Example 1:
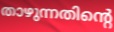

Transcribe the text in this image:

താഴുന്നതിന്റെ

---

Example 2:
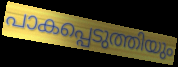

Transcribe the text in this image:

പാകപ്പെടുത്തിയും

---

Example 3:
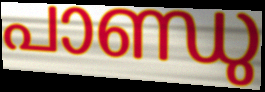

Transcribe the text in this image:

പാണ്ഡു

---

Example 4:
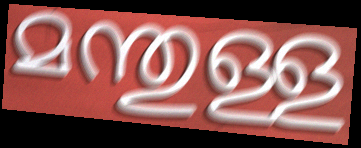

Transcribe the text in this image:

മന്തുള്ള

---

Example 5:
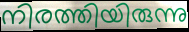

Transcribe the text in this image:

നിരത്തിയിരുന്നു